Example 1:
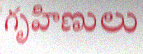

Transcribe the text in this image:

గృహిణులు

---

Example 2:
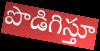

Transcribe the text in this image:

పొడిగిస్తూ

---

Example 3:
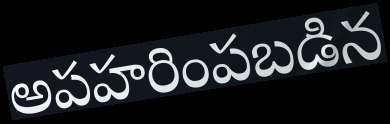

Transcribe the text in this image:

అపహరింపబడిన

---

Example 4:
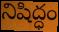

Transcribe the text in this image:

నిషిద్ధం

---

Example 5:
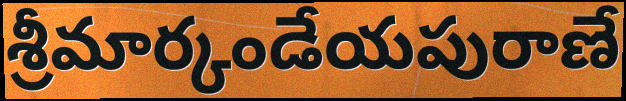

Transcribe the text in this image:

శ్రీమార్కండేయపురాణే